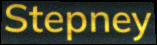
Stepney